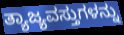
ತ್ಯಾಜ್ಯವಸ್ತುಗಳನ್ನು